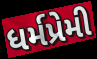
ધર્મપ્રેમી